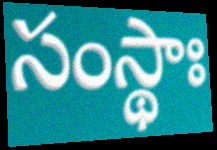
సంస్థాః